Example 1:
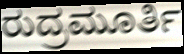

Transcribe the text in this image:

ರುದ್ರಮೂರ್ತಿ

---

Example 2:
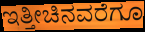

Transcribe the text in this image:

ಇತ್ತೀಚಿನವರೆಗೂ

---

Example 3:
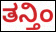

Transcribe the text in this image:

ತನ್ತಿಂ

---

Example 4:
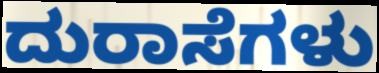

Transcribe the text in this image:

ದುರಾಸೆಗಳು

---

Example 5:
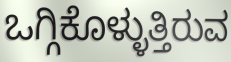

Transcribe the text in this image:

ಒಗ್ಗಿಕೊಳ್ಳುತ್ತಿರುವ